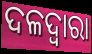
ଦଳଦ୍ୱାରା